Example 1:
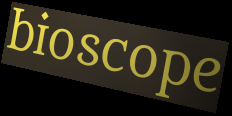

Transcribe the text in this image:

bioscope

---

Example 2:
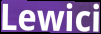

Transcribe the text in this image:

Lewici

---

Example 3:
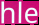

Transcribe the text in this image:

hle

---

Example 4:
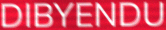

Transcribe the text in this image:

DIBYENDU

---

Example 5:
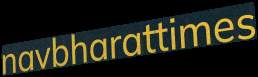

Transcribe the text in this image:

navbharattimes